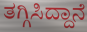
ತಗ್ಗಿಸಿದ್ದಾನೆ